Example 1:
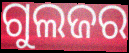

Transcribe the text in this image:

ଗୁଲଜର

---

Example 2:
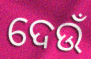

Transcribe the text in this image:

ଦେଉଁ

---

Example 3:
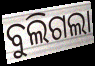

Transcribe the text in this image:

ବୁଲିଗଲା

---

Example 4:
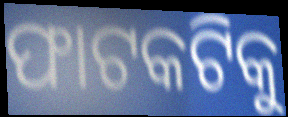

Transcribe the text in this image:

ଫାଟକଟିକୁ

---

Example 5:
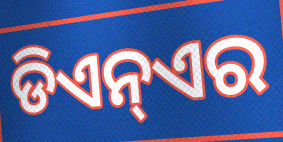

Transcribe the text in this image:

ଡିଏନ୍ଏର